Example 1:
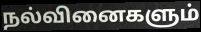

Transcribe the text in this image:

நல்வினைகளும்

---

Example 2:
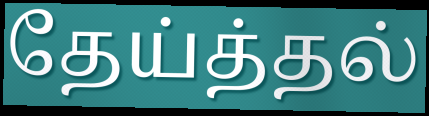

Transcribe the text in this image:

தேய்த்தல்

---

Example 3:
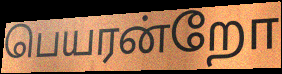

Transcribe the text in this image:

பெயரன்றோ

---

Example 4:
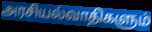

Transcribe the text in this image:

அரசியல்வாதிகளும்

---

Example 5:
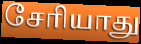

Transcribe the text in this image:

சேரியாது